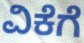
ವಿಕೆಗೆ